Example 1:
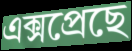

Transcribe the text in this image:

এক্সপ্ৰেছে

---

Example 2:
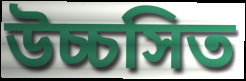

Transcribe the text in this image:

উচ্চসিত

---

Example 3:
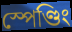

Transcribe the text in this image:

স্পেণ্ডিং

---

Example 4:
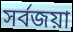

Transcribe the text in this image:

সৰ্বজয়া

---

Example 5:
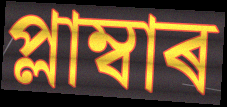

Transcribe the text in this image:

প্লাম্বাৰ